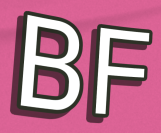
BF